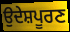
ਉਦੇਸ਼ਪੂਰਣ